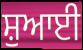
ਸ਼ੁਆਈ